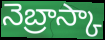
నెబ్రాస్కా